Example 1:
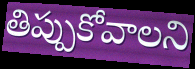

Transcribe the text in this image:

తిప్పుకోవాలని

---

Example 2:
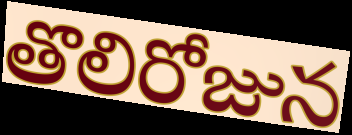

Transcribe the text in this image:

తొలిరోజున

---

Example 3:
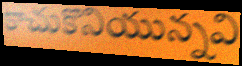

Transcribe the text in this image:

కాచుకొనియున్నవి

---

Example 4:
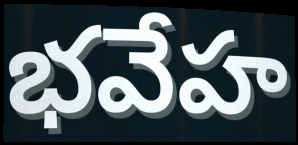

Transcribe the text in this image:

భవేహ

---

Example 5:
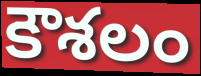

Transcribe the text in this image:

కౌశలం